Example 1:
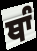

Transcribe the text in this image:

ਥਾੰ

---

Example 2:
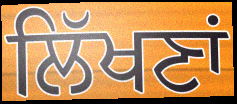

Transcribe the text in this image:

ਲਿੱਖਣਾਂ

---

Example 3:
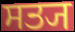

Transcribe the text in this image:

ਸਤ੍ਯ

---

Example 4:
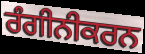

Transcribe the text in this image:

ਰੰਗੀਨੀਕਰਨ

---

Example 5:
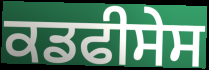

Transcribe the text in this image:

ਕਡਫੀਸੇਸ